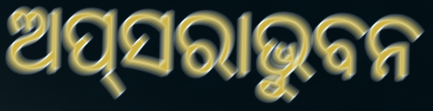
ଅପ୍‍ସରାଭୁବନ